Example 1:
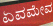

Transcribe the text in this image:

ಏವಮೇವ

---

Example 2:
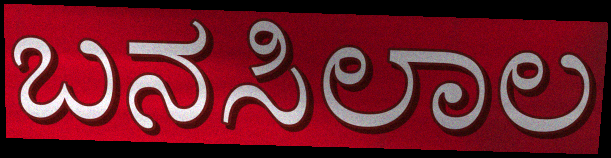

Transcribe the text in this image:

ಬನಸಿಲಾಲ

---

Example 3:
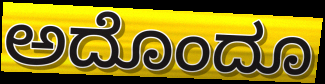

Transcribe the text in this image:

ಅದೊಂದೂ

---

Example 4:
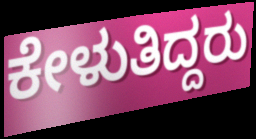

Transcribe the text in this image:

ಕೇಳುತಿದ್ದರು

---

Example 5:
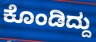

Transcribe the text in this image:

ಕೊಂಡಿದ್ದು